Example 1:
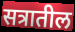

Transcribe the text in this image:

सत्रातील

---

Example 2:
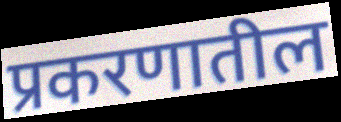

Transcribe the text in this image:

प्रकरणातील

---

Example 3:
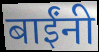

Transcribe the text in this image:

बाईंनी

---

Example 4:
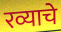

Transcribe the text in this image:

रव्याचे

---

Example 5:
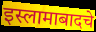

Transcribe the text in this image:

इस्लामाबादचे